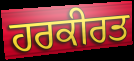
ਹਰਕੀਰਤ